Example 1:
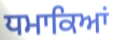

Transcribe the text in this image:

ਧਮਾਕਿਆਂ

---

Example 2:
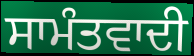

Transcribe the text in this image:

ਸਾਮੰਤਵਾਦੀ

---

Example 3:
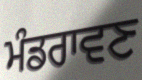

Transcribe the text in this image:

ਮੰਡਰਾਵਣ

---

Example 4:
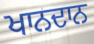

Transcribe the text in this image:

ਖਾਨਦਾਨ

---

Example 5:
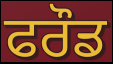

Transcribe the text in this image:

ਫਰੌਡ